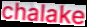
chalake